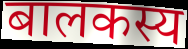
बालकस्य